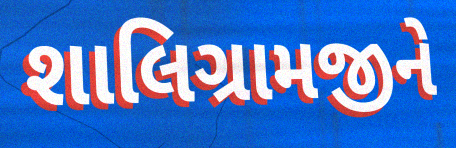
શાલિગ્રામજીને